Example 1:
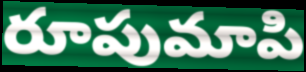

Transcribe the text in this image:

రూపుమాపి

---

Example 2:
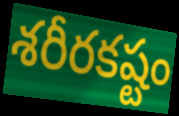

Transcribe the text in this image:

శరీరకష్టం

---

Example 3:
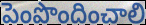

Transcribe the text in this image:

పెంపొందించాలి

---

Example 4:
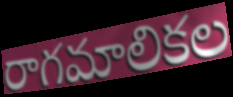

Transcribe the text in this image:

రాగమాలికల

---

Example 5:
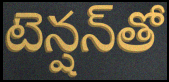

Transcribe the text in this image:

టెన్షన్‌తో